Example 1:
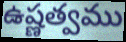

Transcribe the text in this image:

ఉష్ణత్వము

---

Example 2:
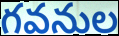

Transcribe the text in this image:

గవనుల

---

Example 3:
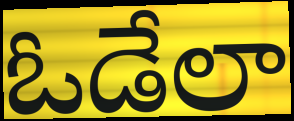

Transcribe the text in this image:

ఓడేలా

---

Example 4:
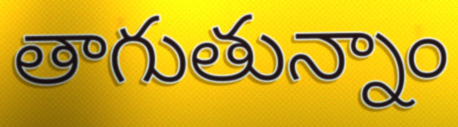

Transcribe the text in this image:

తాగుతున్నాం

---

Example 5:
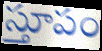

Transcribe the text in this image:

స్తూపం